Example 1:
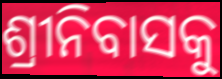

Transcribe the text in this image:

ଶ୍ରୀନିବାସକୁ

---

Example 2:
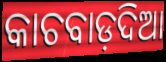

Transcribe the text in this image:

କାଚବାଡ଼ଦିଆ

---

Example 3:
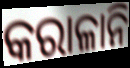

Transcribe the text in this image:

କରାଳାନି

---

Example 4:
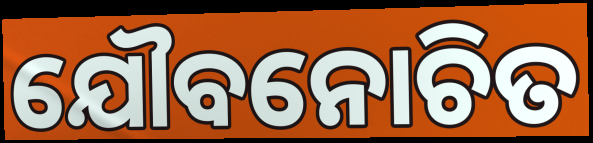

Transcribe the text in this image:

ଯୌବନୋଚିତ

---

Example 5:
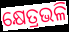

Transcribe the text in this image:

କ୍ଷେତ୍ରଭଳି